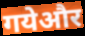
गयेऔर